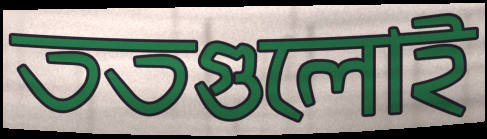
ততগুলোই